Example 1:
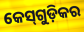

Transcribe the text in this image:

କେସ୍‌ଗୁଡ଼ିକର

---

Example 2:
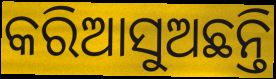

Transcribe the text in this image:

କରିଆସୁଅଛନ୍ତି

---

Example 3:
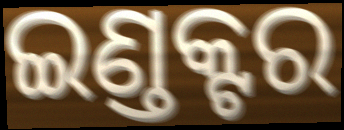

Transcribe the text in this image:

ଇଣ୍ଡକ୍ଟର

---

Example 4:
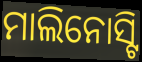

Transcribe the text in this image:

ମାଲିନୋସ୍ଟି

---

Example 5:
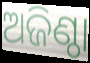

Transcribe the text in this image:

ଅଜିଣ୍ଠା